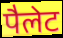
पैलेट